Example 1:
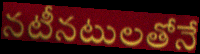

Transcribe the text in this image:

నటీనటులతోనే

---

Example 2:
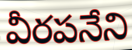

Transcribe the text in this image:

వీరపనేని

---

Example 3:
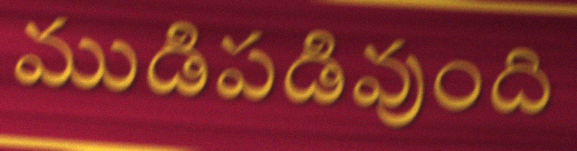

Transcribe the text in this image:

ముడిపడివుంది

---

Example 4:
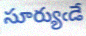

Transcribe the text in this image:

సూర్యుఁడే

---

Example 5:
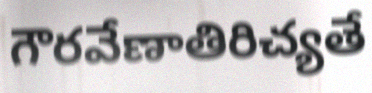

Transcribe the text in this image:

గౌరవేణాతిరిచ్యతే